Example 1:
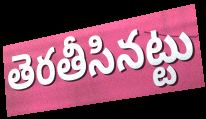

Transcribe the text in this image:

తెరతీసినట్టు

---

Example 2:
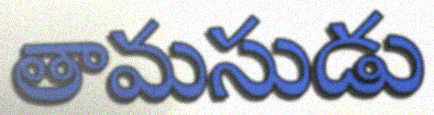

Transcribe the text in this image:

తామసుడు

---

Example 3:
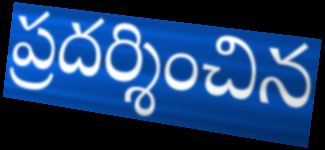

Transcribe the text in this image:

ప్రదర్శించిన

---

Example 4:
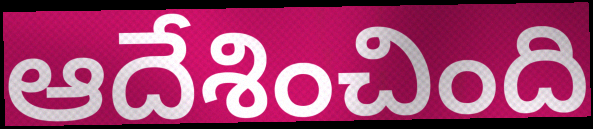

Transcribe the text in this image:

ఆదేశించింది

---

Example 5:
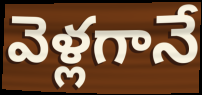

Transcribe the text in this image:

వెళ్లగానే